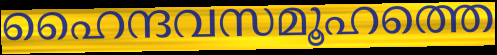
ഹൈന്ദവസമൂഹത്തെ